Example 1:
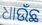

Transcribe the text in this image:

ଧାଉଁଛ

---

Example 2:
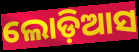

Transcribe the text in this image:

ଲୋଡ଼ିଆସ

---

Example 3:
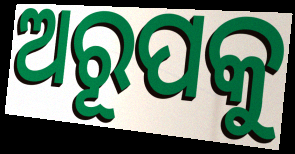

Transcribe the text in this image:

ଅରୂପକୁ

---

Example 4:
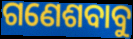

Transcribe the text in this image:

ଗଣେଶବାବୁ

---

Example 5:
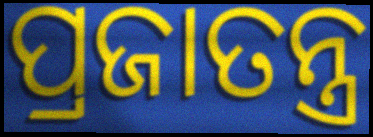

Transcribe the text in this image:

ପ୍ରଜାତନ୍ତ୍ର